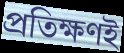
প্রতিক্ষণই